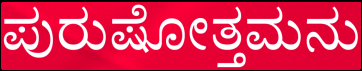
ಪುರುಷೋತ್ತಮನು